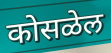
कोसळेल